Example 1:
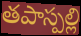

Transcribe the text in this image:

తపాస్పల్లి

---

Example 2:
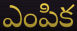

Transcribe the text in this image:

ఎంపిక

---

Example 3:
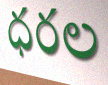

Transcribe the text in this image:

ధరల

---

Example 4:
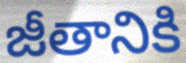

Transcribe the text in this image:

జీతానికి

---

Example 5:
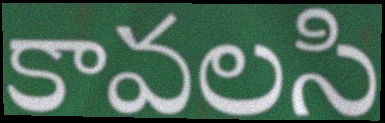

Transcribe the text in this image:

కావలసి